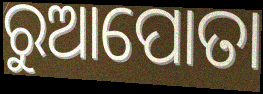
ରୁଆପୋତା